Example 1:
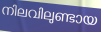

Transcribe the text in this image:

നിലവിലുണ്ടായ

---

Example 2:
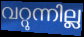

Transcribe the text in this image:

വറ്റുന്നില്ല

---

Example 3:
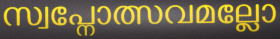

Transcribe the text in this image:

സ്വപ്നോത്സവമല്ലോ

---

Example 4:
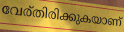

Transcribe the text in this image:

വേര്തിരിക്കുകയാണ്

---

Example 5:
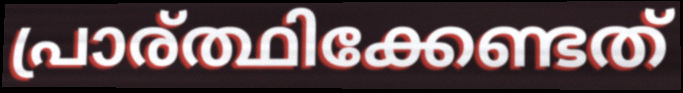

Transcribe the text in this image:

പ്രാര്ത്ഥിക്കേണ്ടത്